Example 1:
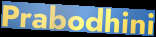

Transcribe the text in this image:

Prabodhini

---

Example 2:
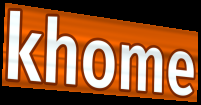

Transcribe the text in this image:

khome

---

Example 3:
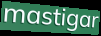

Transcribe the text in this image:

mastigar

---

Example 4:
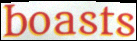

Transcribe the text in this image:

boasts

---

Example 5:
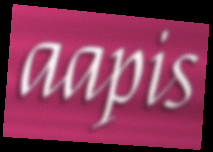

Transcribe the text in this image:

aapis